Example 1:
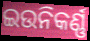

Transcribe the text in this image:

ଇଉନିକର୍ଣ୍ଣ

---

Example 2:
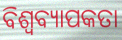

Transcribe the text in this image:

ବିଶ୍ୱବ୍ୟାପକତା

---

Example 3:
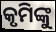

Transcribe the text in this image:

କୃମିଙ୍କୁ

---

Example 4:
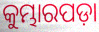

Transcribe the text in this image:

କୁମ୍ଭାରପଡ଼ା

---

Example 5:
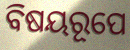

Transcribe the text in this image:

ବିଷୟରୂପେ